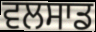
ਵਲਸਾਡ